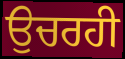
ਉਚਰਹੀ